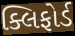
ક્લિફોર્ડ